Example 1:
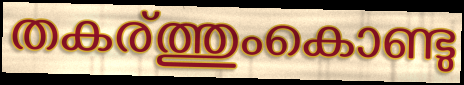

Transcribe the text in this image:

തകര്ത്തുംകൊണ്ടു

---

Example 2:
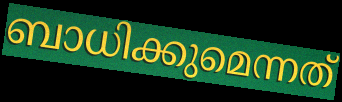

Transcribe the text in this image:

ബാധിക്കുമെന്നത്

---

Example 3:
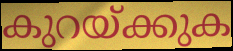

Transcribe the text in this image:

കുറയ്ക്കുക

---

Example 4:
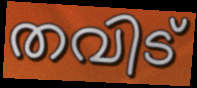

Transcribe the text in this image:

തവിട്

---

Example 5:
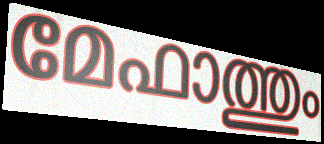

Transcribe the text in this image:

മേഫാത്തും